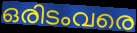
ഒരിടംവരെ